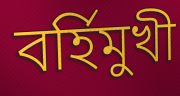
বৰ্হিমুখী